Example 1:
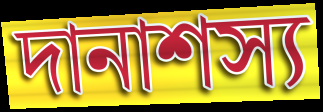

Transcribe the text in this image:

দানাশস্য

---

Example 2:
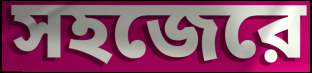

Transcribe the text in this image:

সহজেরে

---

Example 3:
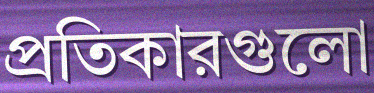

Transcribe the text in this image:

প্রতিকারগুলো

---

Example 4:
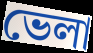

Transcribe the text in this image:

ভেলা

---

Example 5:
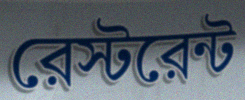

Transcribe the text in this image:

রেস্টরেন্ট